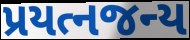
પ્રયત્નજન્ય